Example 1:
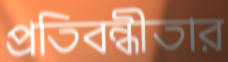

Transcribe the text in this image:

প্রতিবন্ধীতার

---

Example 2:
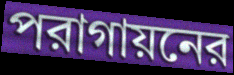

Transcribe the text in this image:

পরাগায়নের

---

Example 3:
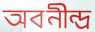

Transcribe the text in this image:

অবনীন্দ্র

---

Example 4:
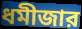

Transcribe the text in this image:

ধমীজার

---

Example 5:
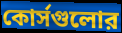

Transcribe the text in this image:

কোর্সগুলোর